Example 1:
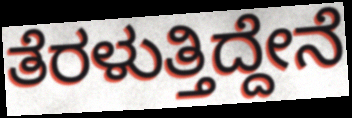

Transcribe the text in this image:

ತೆರಳುತ್ತಿದ್ದೇನೆ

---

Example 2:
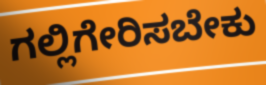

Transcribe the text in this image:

ಗಲ್ಲಿಗೇರಿಸಬೇಕು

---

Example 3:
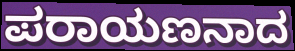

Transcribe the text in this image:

ಪರಾಯಣನಾದ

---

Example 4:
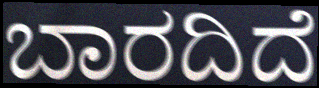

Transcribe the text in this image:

ಬಾರದಿದೆ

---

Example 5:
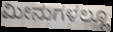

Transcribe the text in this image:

ಮೀನುಗಳಲ್ಲೂ